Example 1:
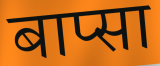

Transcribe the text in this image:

बाप्सा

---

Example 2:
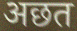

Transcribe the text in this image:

अछत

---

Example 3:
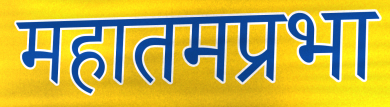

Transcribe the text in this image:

महातमप्रभा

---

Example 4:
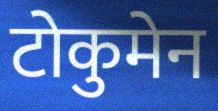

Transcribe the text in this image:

टोकुमेन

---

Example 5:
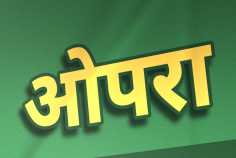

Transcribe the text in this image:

ओपरा